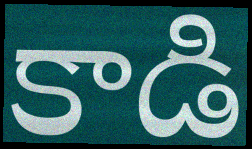
కాడి